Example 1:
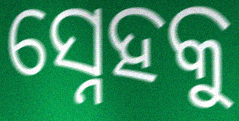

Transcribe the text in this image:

ସ୍ନେହକୁ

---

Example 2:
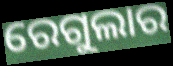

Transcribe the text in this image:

ରେଗୁଲାର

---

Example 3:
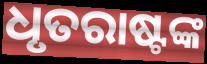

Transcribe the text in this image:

ଧୃତରାଷ୍ଟଙ୍କ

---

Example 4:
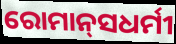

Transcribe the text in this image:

ରୋମାନ୍‌ସଧର୍ମୀ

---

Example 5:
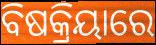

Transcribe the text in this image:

ବିଷକ୍ରିୟାରେ